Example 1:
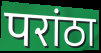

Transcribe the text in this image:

परांठा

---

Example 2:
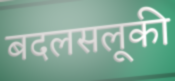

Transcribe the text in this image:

बदलसलूकी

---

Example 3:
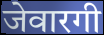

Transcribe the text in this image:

जेवारगी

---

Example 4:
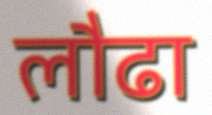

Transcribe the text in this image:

लौढा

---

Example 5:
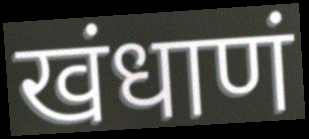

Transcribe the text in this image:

खंधाणं